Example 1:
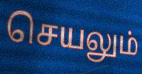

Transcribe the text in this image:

செயலும்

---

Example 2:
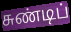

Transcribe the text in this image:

சுண்டிப்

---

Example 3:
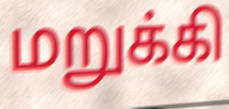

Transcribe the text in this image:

மறுக்கி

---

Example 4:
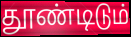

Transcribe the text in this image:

தூண்டிடும்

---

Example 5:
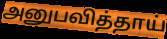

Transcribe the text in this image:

அனுபவித்தாய்